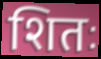
शितः